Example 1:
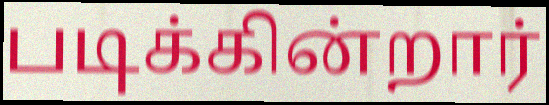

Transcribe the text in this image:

படிக்கின்றார்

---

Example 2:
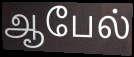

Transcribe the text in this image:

ஆபேல்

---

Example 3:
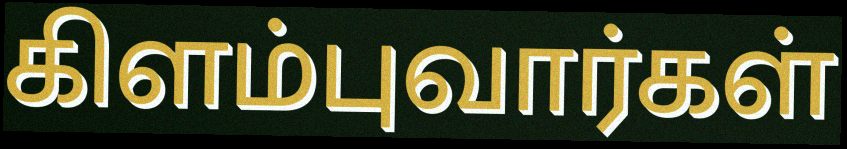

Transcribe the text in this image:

கிளம்புவார்கள்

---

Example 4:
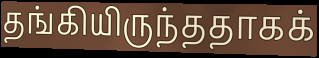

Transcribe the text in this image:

தங்கியிருந்ததாகக்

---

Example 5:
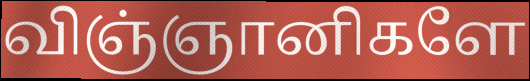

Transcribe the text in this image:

விஞ்ஞானிகளே